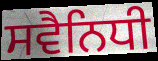
ਸਵੈਨਿਧੀ